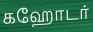
கஹோடர்